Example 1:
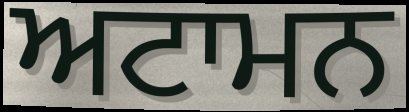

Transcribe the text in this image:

ਅਟਾਮਨ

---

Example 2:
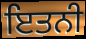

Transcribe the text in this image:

ਇਤਨੀ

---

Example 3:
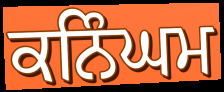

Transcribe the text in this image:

ਕਨਿੰਘਮ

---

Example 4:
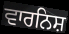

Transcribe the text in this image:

ਵਾਰਨਿਸ਼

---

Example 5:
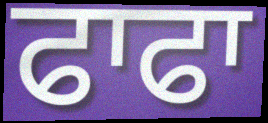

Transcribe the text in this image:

ਫਾਫਾ